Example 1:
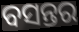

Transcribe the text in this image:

ବସନ୍ତର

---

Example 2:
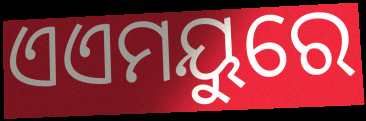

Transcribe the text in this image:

ଏଏମୟୁରେ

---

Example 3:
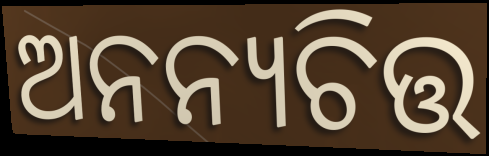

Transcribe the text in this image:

ଅନନ୍ୟଚିତ୍ତ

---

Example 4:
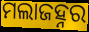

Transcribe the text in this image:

ମଲାଜହ୍ନର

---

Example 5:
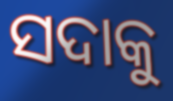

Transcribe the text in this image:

ସଦାକୁ